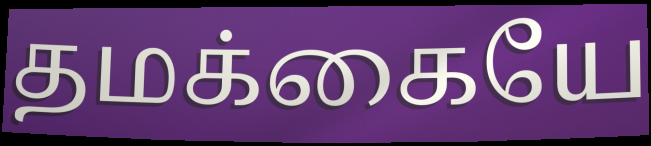
தமக்கையே